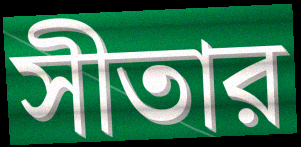
সীতার